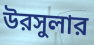
উরসুলার